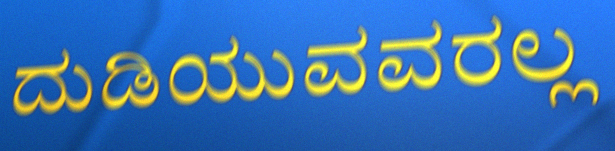
ದುಡಿಯುವವರಲ್ಲ